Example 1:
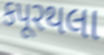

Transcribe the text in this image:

કપૂરથલા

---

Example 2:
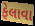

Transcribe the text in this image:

ફેલાવા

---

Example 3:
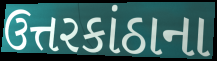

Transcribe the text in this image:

ઉત્તરકાંઠાના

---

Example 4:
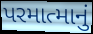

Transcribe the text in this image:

પરમાત્માનું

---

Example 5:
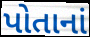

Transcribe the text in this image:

પોતાનાં